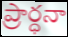
ప్రార్ధనా